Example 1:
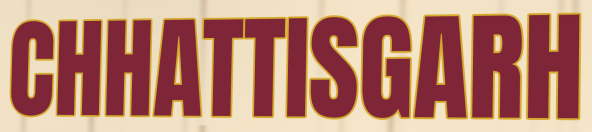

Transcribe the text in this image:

CHHATTISGARH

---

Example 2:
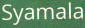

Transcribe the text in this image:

Syamala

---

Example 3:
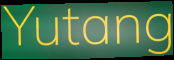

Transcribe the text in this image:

Yutang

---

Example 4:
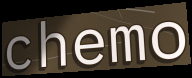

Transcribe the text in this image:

chemo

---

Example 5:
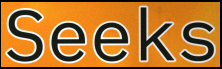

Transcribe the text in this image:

Seeks